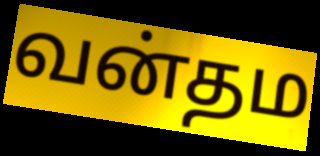
வன்தம